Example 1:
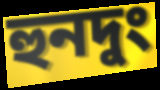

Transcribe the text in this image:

হুনদুং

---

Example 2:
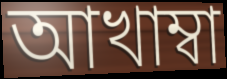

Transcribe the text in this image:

আখাম্বা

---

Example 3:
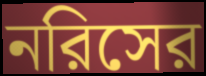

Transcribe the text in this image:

নরিসের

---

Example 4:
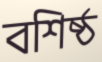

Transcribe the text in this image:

বশিষ্ঠ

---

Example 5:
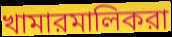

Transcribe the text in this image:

খামারমালিকরা